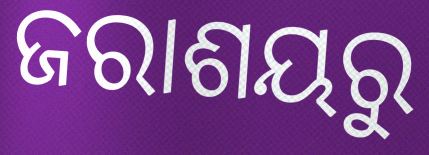
ଜରାଶୟରୁ